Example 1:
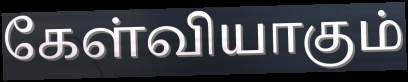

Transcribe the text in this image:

கேள்வியாகும்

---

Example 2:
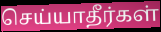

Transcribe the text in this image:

செய்யாதீர்கள்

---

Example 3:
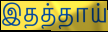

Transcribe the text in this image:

இதத்தாய்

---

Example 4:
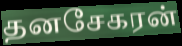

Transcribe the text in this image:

தனசேகரன்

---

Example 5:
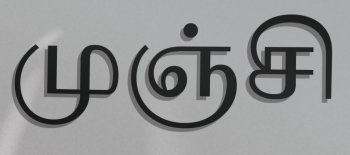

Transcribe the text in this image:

முஞ்சி